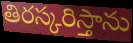
తిరస్కరిస్తాను